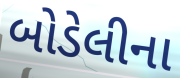
બોડેલીના